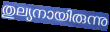
തുല്യനായിരുന്നു